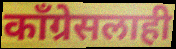
काँग्रेसलाही